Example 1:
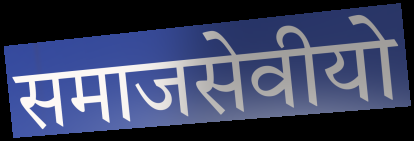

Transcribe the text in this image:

समाजसेवीयो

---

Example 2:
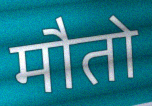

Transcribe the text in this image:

मौतो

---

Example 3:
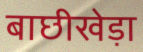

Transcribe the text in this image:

बाछीखेड़ा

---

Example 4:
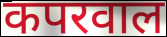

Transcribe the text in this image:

कपरवाल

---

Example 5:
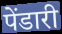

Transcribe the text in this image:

पेंडारी